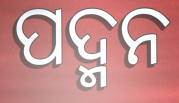
ପଦ୍ମନ